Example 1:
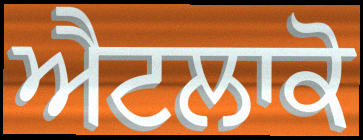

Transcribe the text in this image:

ਐਟਲਾਕੋ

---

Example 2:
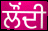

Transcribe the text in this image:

ਲੌਂਦੀ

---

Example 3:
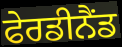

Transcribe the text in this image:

ਫੇਰਡੀਨੈਂਡ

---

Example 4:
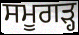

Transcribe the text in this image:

ਸਮੂਗੜ੍ਹ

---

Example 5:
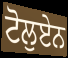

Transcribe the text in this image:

ਟੋਲੁਏਨ